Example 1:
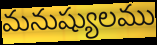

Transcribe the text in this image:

మనుష్యులము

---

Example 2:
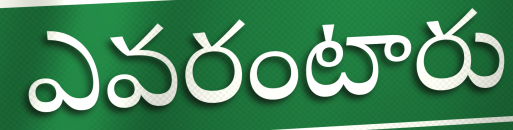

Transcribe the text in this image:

ఎవరంటారు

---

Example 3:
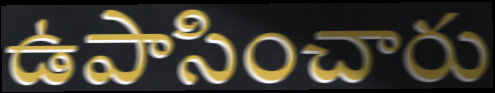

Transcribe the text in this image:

ఉపాసించారు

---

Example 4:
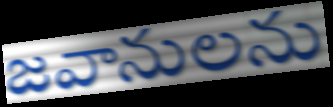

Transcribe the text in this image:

జవానులను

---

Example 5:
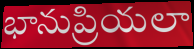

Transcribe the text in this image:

భానుప్రియలా